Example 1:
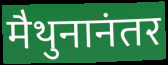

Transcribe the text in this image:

मैथुनानंतर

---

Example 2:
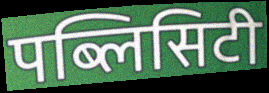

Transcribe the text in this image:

पब्लिसिटी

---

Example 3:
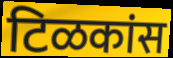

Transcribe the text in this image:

टिळकांस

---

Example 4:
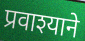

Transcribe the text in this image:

प्रवाश्याने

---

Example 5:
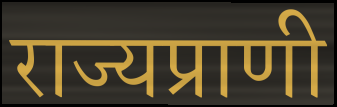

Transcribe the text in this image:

राज्यप्राणी